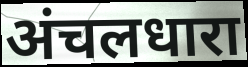
अंचलधारा